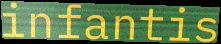
infantis